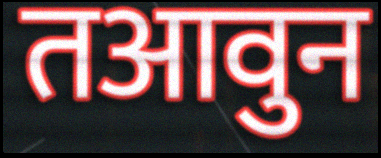
तआवुन